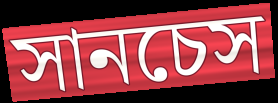
সানচেস